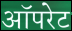
ऑपरेट